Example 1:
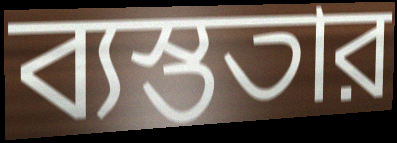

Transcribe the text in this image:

ব্যস্ততার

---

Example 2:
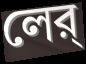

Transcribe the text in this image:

লের্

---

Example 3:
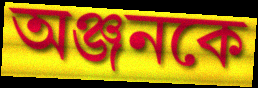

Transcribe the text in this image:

অঞ্জনকে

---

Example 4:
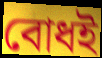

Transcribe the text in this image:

বোধই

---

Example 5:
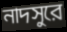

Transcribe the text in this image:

নাদসুরে